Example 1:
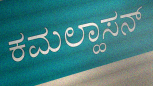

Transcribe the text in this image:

ಕಮಲ್ಹಾಸನ್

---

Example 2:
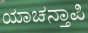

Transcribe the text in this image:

ಯಾಚನ್ತಾಪಿ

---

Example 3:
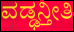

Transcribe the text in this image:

ವಡ್ಢನ್ತೀತಿ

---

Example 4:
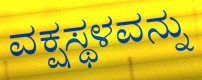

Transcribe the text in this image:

ವಕ್ಷಸ್ಥಳವನ್ನು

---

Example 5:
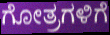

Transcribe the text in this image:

ಗೋತ್ರಗಳಿಗೆ